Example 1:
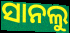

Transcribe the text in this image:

ସାନଲୁ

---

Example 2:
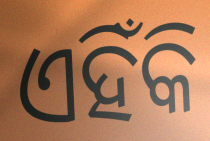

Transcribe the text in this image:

ଏହିଁକି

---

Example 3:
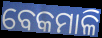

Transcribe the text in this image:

ବେକମାଳି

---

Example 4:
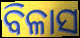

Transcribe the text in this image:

ବିଳାସ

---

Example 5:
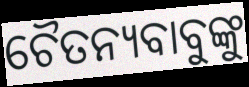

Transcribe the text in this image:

ଚୈତନ୍ୟବାବୁଙ୍କୁ